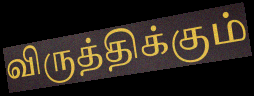
விருத்திக்கும்